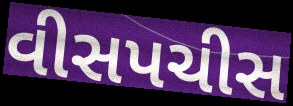
વીસપચીસ